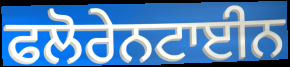
ਫਲੋਰੇਨਟਾਈਨ